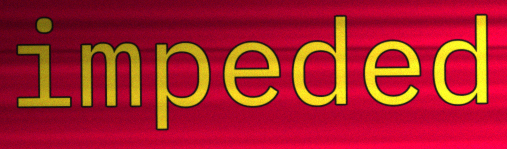
impeded